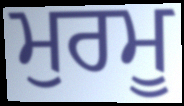
ਮੁਰਮੂ